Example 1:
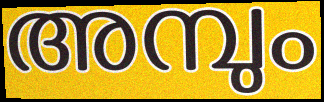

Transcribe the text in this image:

അമ്പും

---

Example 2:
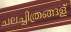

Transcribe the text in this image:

ചലച്ചിത്രങ്ങള്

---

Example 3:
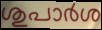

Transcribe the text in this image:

ശുപാർശ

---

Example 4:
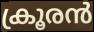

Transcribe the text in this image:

ക്രൂരൻ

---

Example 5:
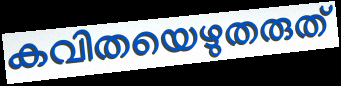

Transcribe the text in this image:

കവിതയെഴുതരുത്